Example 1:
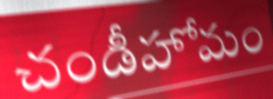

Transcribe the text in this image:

చండీహోమం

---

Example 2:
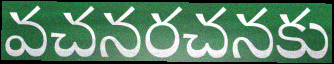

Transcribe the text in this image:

వచనరచనకు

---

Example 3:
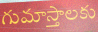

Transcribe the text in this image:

గుమాస్తాలకు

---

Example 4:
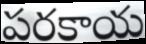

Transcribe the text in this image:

పరకాయ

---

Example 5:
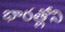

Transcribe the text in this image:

భారత్లోని